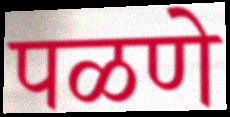
पळणे